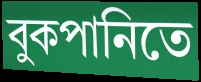
বুকপানিতে